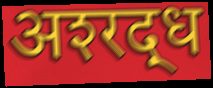
अश्रद्ध